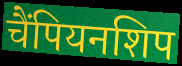
चैंपियनशिप